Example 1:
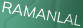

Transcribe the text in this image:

RAMANLAL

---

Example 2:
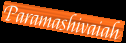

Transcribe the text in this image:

Paramashivaiah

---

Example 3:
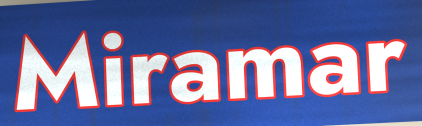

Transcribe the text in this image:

Miramar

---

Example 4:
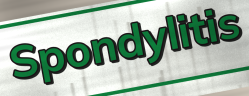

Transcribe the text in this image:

Spondylitis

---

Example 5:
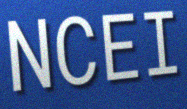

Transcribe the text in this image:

NCEI